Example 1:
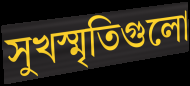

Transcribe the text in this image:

সুখস্মৃতিগুলো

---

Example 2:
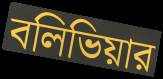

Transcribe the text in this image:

বলিভিয়ার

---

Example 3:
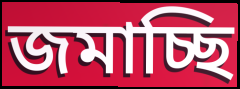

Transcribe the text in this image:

জমাচ্ছি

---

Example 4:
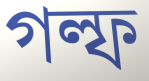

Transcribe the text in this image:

গল্ফ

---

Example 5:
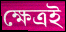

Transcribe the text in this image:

ক্ষেত্রই